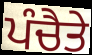
ਪੰਚੈਤੇ